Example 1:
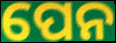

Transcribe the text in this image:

ପେନ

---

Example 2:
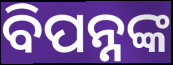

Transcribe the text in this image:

ବିପନ୍ନଙ୍କ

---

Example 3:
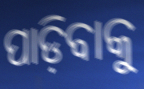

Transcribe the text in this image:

ପାଡ଼ିବାକୁ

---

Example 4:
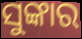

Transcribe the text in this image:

ସୁଙ୍କାର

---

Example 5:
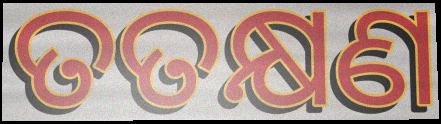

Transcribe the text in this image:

ତତକ୍ଷଣ